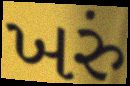
ખરું